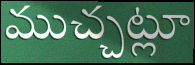
ముచ్చట్లూ